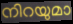
നിറയുമാ